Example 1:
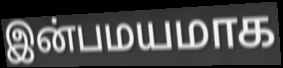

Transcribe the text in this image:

இன்பமயமாக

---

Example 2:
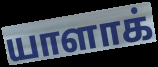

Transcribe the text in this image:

யாளாக்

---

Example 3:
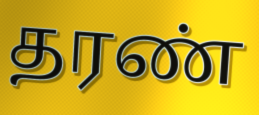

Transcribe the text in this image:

தரண்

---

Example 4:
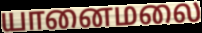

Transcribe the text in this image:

யானைமலை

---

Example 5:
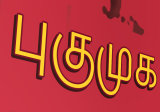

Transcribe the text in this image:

புகுமுக